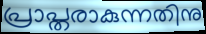
പ്രാപ്തരാകുന്നതിനു